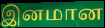
இனமான